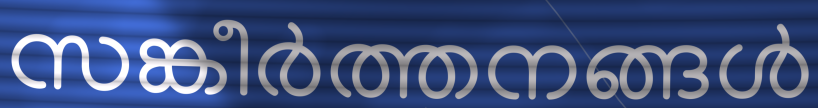
സങ്കീർത്തനങ്ങൾ